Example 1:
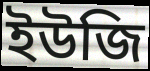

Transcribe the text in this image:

ইউজি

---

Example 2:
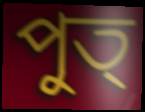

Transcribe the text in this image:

পুত্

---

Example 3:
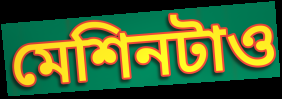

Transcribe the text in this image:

মেশিনটাও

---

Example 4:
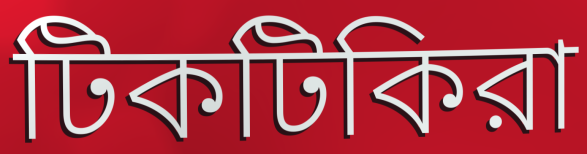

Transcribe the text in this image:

টিকটিকিরা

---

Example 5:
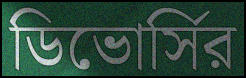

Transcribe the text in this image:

ডিভোর্সির